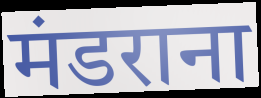
मंडराना